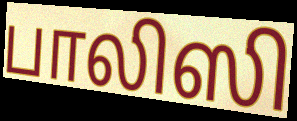
பாலிஸி